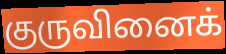
குருவினைக்